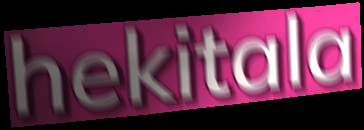
hekitala